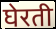
घेरती